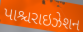
પાશ્ચરાઇઝેશન